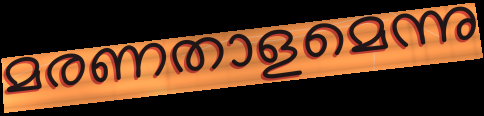
മരണതാളമെന്നു